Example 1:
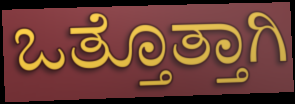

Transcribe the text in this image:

ಒತ್ತೊತ್ತಾಗಿ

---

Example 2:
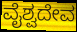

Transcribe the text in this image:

ವೈಶ್ವದೇವ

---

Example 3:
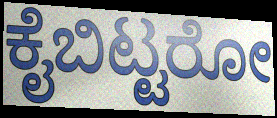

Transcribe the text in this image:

ಕೈಬಿಟ್ಟರೋ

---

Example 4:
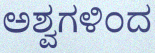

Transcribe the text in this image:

ಅಶ್ವಗಳಿಂದ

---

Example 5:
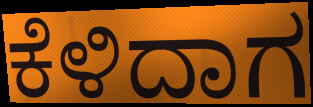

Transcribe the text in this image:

ಕೆಳಿದಾಗ